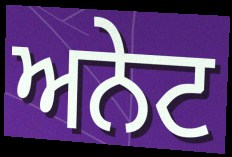
ਅਨੇਟ